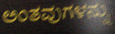
ಅಂತವುಗಳನ್ನು